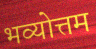
भव्योत्तम